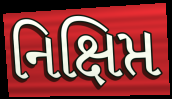
નિક્ષિપ્ત